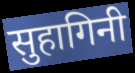
सुहागिनी